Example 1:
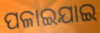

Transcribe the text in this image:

ପଳାଇଯାଇ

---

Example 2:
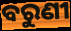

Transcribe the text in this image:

ବରୁଣୀ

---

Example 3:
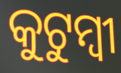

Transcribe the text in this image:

କୁଟୁମ୍ୱୀ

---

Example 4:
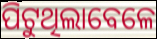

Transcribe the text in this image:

ପିଟୁଥିଲାବେଳେ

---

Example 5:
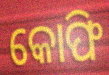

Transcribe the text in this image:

କୋଫି